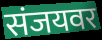
संजयवर